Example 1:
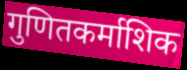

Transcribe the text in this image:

गुणितकर्माशिक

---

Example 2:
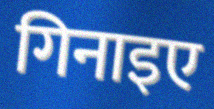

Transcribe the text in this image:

गिनाइए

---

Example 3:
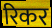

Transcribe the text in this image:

रिकर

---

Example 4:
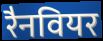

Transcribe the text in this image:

रैनवियर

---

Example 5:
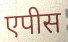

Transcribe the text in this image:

एपीस